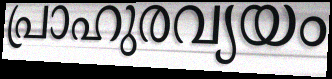
പ്രാഹുരവ്യയം